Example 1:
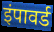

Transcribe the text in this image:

इंपावर्ड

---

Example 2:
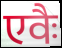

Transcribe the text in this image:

एवैः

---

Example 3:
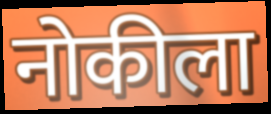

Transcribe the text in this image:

नोकीला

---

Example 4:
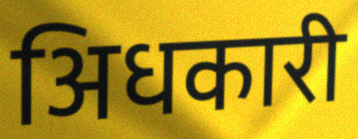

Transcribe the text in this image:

अिधकारी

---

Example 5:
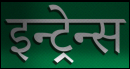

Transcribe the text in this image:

इन्ट्रेन्स